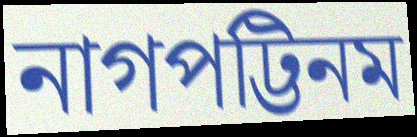
নাগপট্টিনম